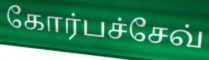
கோர்பச்சேவ்